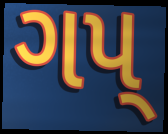
ગપ્